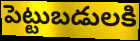
పెట్టుబడులకి